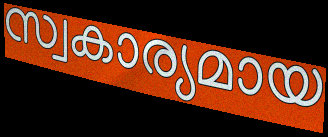
സ്വകാര്യമായ